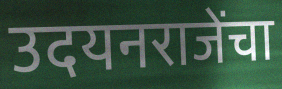
उदयनराजेंचा